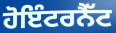
ਹੋਇੰਟਰਨੈੱਟ